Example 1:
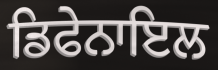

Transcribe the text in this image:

ਡਿਫੇਨਾਇਲ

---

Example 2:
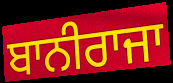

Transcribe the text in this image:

ਬਾਨੀਰਾਜਾ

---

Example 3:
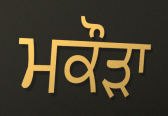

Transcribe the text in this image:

ਮਕੌੜਾ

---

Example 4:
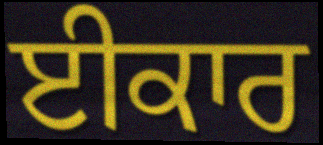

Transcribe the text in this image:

ਈਕਾਰ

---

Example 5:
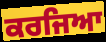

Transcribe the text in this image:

ਕਰਜਿਆ